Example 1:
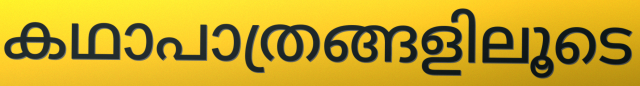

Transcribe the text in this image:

കഥാപാത്രങ്ങളിലൂടെ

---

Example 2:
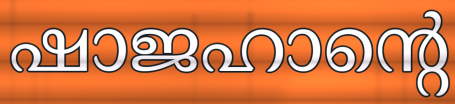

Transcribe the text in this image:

ഷാജഹാന്റെ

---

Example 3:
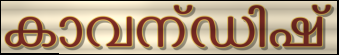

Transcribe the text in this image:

കാവന്ഡിഷ്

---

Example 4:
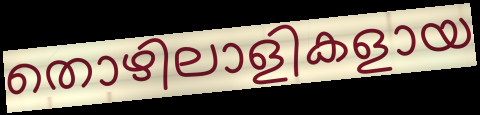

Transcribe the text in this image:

തൊഴിലാളികളായ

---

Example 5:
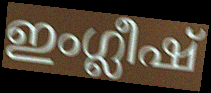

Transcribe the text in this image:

ഇംഗ്ലീഷ്